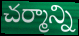
చర్మాన్ని